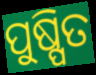
ପୁଷ୍ପିତ